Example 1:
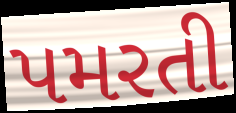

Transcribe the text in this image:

પમરતી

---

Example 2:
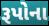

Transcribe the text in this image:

રૂપોના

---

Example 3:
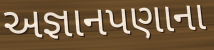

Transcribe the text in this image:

અજ્ઞાનપણાના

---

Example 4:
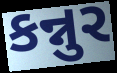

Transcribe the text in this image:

કન્નુર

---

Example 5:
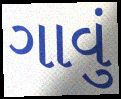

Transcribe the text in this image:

ગાવું